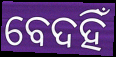
ବେଦହିଁ